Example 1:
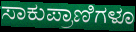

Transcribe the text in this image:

ಸಾಕುಪ್ರಾಣಿಗಳೂ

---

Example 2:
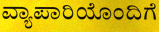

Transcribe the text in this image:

ವ್ಯಾಪಾರಿಯೊಂದಿಗೆ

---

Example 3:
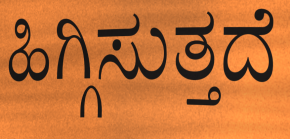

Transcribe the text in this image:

ಹಿಗ್ಗಿಸುತ್ತದೆ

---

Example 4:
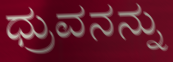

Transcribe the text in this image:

ಧ್ರುವನನ್ನು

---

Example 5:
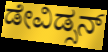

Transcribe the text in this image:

ಡೇವಿಡ್ಸನ್